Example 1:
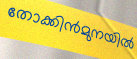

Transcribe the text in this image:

തോക്കിൻമുനയിൽ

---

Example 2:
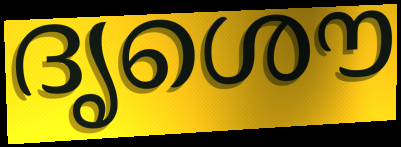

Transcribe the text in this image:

ദൃശൌ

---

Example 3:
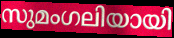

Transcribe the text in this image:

സുമംഗലിയായി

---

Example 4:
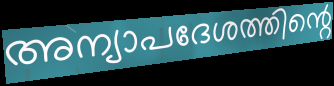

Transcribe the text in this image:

അന്യാപദേശത്തിന്റെ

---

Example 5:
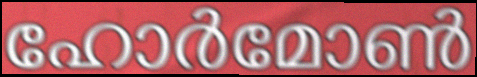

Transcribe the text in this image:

ഹോർമോൺ